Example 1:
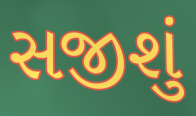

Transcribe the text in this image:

સજીશું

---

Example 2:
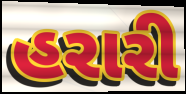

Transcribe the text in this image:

હરારી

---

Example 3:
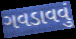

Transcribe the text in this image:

ગવડાવવું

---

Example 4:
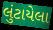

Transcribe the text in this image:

લુંટાયેલા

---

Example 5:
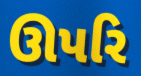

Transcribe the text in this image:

ઊપરિ